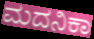
ಮದನಿಕಾ